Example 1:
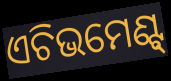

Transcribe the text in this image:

ଏଚିଭମେଣ୍ଟ୍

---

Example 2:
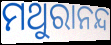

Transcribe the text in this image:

ମଥୁରାନନ୍ଦ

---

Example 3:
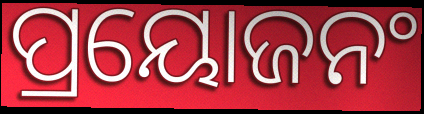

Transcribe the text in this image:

ପ୍ରୟୋଜନଂ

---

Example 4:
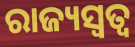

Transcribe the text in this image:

ରାଜ୍ୟସ୍ଵତ୍ଵ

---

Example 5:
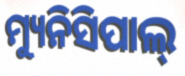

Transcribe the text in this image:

ମ୍ୟୁନିସିପାଲ୍